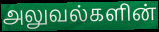
அலுவல்களின்